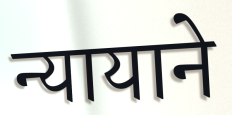
न्यायाने